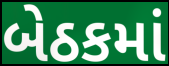
બેઠકમાં